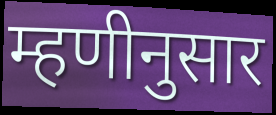
म्हणीनुसार